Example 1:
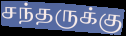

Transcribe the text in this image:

சந்தருக்கு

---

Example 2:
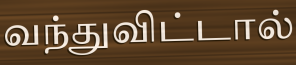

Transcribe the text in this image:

வந்துவிட்டால்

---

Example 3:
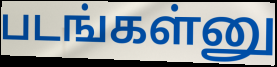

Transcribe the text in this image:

படங்கள்னு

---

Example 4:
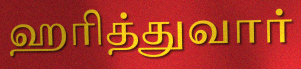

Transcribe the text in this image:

ஹரித்துவார்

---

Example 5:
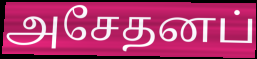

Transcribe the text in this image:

அசேதனப்